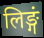
लिङ्गं